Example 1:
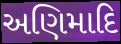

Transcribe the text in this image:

અણિમાદિ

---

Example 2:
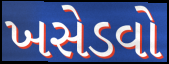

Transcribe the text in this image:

ખસેડવો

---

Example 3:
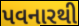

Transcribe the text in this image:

પવનારથી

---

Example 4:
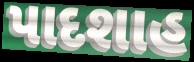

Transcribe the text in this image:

પાદશાહ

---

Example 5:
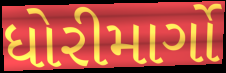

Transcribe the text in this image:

ધોરીમાર્ગો